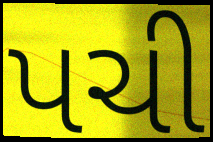
પચી